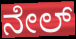
ನೇಲ್